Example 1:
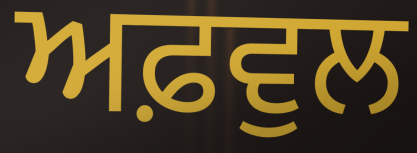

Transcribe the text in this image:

ਅਫ਼ਵੁਲ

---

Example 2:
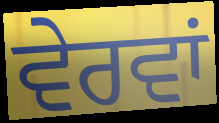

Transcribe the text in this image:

ਵੇਰਵਾਂ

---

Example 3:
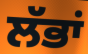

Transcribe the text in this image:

ਲੱਭਾਂ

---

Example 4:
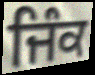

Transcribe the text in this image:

ਜਿੰਕ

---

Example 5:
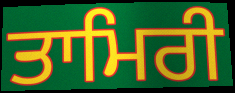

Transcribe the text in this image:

ਤਾਮਿਰੀ